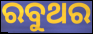
ରବୁଥର